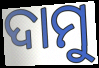
ଦାମୁ